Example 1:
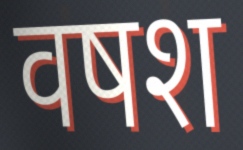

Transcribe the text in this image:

वषश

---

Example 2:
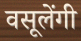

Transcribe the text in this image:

वसूलेंगी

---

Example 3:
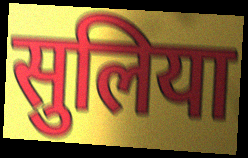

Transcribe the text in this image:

सुलिया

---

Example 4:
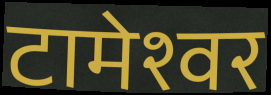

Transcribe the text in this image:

टामेश्वर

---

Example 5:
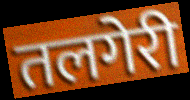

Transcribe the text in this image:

तलगेरी